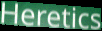
Heretics